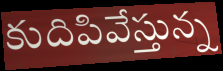
కుదిపివేస్తున్న